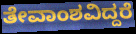
ತೇವಾಂಶವಿದ್ದರೆ